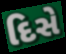
દિસે